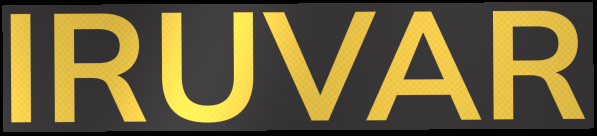
IRUVAR